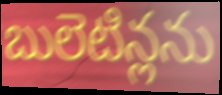
బులెటిన్లను